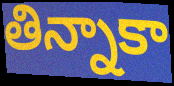
తిన్నాకా